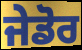
ਜੇਡੋਰ